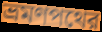
ভ্রমণপথের